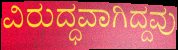
ವಿರುದ್ಧವಾಗಿದ್ದವು